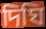
দিঘি